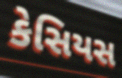
કેસિયસ